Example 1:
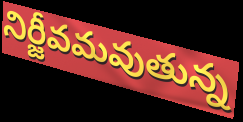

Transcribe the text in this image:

నిర్జీవమవుతున్న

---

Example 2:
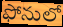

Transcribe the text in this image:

ఫోనులో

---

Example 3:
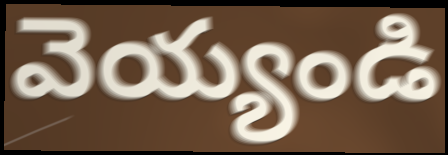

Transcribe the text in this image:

వెయ్యండి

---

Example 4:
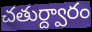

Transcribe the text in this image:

చతుర్ద్వారం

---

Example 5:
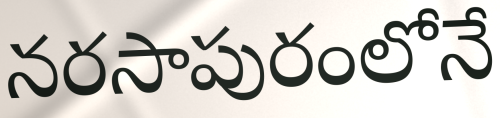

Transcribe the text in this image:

నరసాపురంలోనే